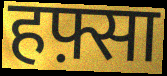
हफ़्सा